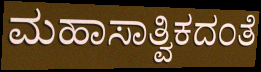
ಮಹಾಸಾತ್ವಿಕದಂತೆ